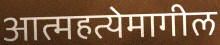
आत्महत्येमागील